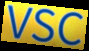
VSC